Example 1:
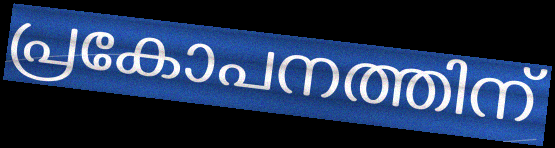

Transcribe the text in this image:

പ്രകോപനത്തിന്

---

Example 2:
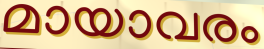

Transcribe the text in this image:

മായാവരം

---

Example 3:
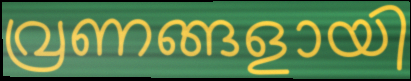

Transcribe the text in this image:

വ്രണങ്ങളായി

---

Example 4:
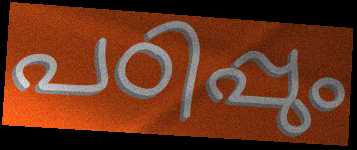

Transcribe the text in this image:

പഠിപ്പും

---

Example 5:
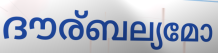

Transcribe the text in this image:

ദൗര്ബല്യമോ